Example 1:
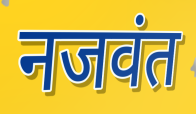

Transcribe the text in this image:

नजवंत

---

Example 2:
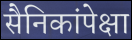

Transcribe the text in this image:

सैनिकांपेक्षा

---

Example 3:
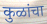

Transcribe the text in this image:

कुळांचा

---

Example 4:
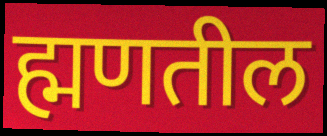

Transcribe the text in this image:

ह्मणतील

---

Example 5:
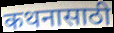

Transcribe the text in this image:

कथनासाठी